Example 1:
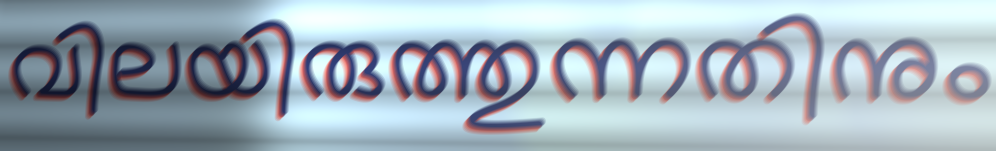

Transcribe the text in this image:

വിലയിരുത്തുന്നതിനും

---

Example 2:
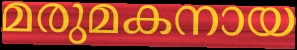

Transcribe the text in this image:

മരുമകനായ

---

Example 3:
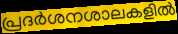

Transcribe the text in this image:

പ്രദർശനശാലകളിൽ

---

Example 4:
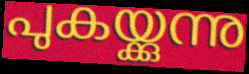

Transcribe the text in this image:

പുകയ്ക്കുന്നു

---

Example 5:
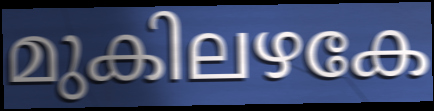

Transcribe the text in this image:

മുകിലഴകേ